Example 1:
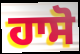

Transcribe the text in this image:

ਹਾਸੋ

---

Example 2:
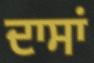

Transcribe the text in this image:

ਦਾਸਾਂ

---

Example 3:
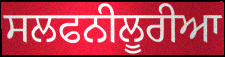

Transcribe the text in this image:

ਸਲਫਨੀਲੂਰੀਆ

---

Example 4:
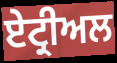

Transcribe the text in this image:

ਏਟ੍ਰੀਅਲ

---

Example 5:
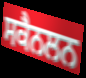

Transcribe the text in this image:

ਸਕੈਨਲਨ